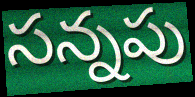
సన్నపు